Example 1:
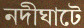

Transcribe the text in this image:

নদীঘাটে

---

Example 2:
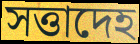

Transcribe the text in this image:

সত্তাদেহ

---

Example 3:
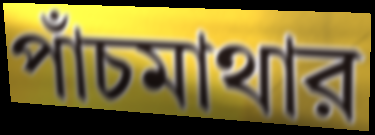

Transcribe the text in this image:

পাঁচমাথার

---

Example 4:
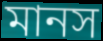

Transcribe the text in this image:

মানস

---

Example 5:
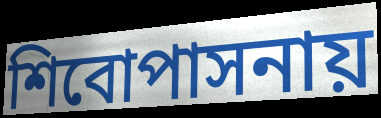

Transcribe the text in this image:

শিবোপাসনায়